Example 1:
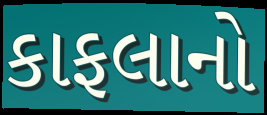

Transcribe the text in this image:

કાફલાનો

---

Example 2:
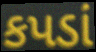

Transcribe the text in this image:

કપડાં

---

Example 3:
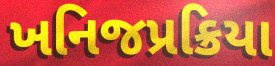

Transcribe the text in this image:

ખનિજપ્રક્રિયા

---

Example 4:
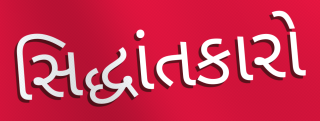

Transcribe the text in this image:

સિદ્ધાંતકારો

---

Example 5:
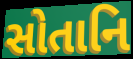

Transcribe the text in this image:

સોતાનિ